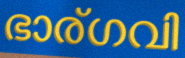
ഭാര്ഗവി